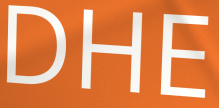
DHE